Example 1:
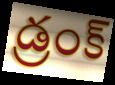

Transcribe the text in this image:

డ్రంక్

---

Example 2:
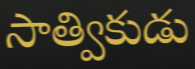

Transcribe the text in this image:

సాత్వికుడు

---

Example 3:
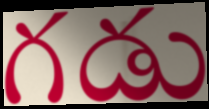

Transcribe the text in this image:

గడు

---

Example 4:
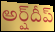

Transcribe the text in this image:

అర్ష్‌దీప్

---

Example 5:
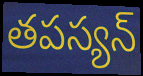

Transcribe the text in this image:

తపస్యన్